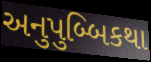
અનુપુબ્બિકથા